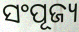
ସଂପୂଜ୍ଯ